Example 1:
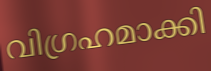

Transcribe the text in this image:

വിഗ്രഹമാക്കി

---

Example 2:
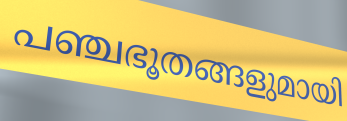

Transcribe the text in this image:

പഞ്ചഭൂതങ്ങളുമായി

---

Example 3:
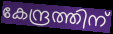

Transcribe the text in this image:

കേന്ദ്രത്തിന്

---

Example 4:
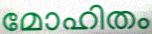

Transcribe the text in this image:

മോഹിതം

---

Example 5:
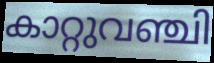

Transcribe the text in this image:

കാറ്റുവഞ്ചി